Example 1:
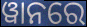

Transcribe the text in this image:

ୱାନରେ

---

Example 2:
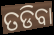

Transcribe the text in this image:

ତଡିବା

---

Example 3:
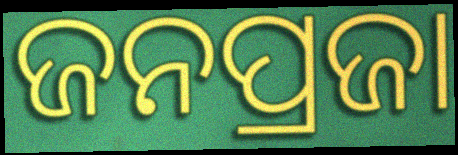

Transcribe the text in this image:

ଜନପ୍ରଜା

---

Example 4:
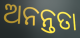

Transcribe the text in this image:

ଅନନ୍ତତା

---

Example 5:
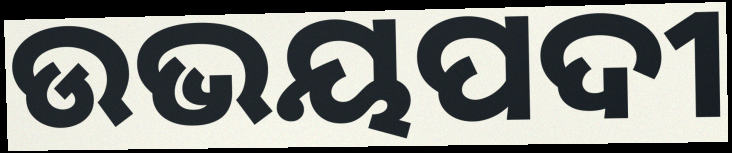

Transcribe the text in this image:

ଉଭୟପଦୀ